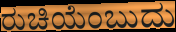
ರುಚಿಯೆಂಬುದು